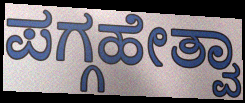
ಪಗ್ಗಹೇತ್ವಾ